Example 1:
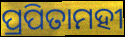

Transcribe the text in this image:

ପ୍ରପିତାମହୀ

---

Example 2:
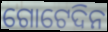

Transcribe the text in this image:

ଗୋଟେଦିନ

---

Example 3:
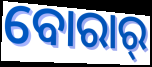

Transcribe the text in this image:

ବୋରାର୍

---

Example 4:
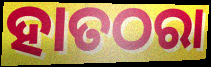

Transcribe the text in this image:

ହାତଠରା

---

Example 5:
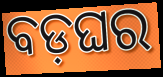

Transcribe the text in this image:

ବଡ଼ଘର